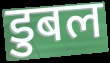
डुबल